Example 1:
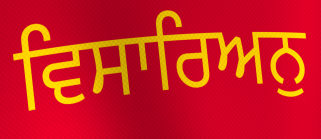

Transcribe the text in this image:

ਵਿਸਾਰਿਅਨੁ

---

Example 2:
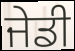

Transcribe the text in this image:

ਜੇਡੀ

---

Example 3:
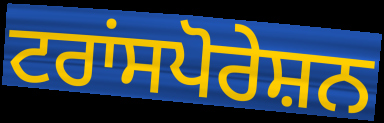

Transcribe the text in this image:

ਟਰਾਂਸਪੋਰੇਸ਼ਨ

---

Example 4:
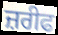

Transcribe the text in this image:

ਜ਼ਰੀਫ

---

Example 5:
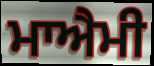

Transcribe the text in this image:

ਮਾਐਮੀ